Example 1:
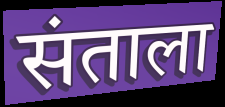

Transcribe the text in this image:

संताला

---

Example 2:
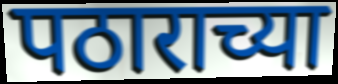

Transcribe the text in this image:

पठाराच्या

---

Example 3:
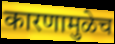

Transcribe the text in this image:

कारणामुळेच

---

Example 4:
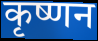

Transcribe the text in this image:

कृष्णन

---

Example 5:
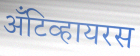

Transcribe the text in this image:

अँटिव्हायरस